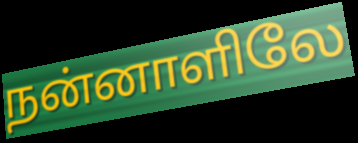
நன்னாளிலே